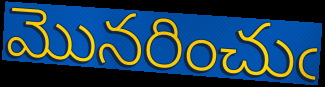
మొనరించుఁ